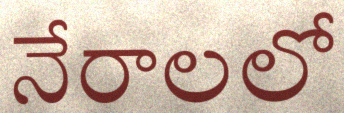
నేరాలలో